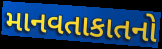
માનવતાકાતનો